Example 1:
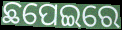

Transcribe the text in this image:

ଛପେଇରେ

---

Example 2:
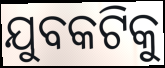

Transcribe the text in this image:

ଯୁବକଟିକୁ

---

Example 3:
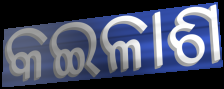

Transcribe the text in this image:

କଇଳାଶ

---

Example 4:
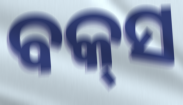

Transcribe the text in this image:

ବକ୍‍ସ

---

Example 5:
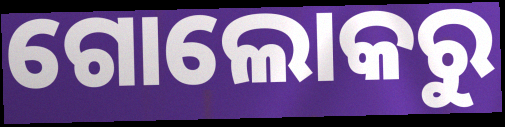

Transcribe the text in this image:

ଗୋଲୋକରୁ